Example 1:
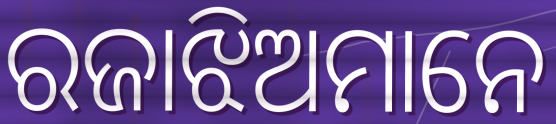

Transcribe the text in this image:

ରଜାଝିଅମାନେ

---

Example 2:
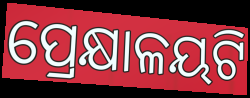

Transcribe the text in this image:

ପ୍ରେକ୍ଷାଳୟଟି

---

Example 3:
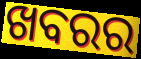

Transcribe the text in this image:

ଖବରର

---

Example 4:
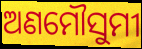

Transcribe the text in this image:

ଅଣମୌସୁମୀ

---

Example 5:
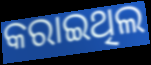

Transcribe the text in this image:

କରାଇଥିଲ